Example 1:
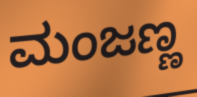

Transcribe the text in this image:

ಮಂಜಣ್ಣ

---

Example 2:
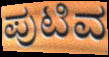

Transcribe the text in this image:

ಪುಟಿವ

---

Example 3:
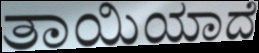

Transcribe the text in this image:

ತಾಯಿಯಾದೆ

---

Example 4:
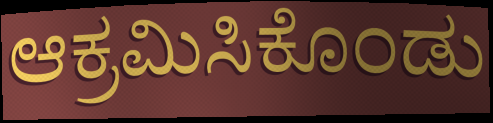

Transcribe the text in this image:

ಆಕ್ರಮಿಸಿಕೊಂಡು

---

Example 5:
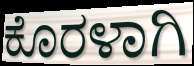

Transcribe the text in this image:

ಕೊರಳಾಗಿ